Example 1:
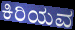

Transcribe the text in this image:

ಕಿರಿಯವ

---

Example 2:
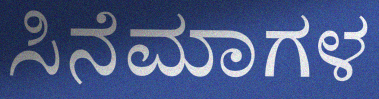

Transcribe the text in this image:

ಸಿನೆಮಾಗಳ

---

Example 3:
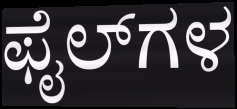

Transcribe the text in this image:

ಫೈಲ್‌ಗಳ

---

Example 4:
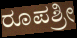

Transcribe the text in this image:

ರೂಪಶ್ರೀ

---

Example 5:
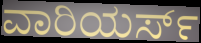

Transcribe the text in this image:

ವಾರಿಯರ್ಸ್